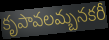
కృపావలమ్బనకరీ